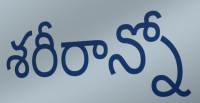
శరీరాన్నో